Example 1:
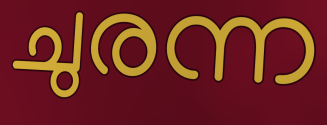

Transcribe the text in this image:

ചുരന്ന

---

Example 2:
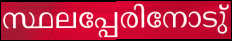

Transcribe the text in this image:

സ്ഥലപ്പേരിനോടു്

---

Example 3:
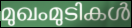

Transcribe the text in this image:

മുഖംമുടികൾ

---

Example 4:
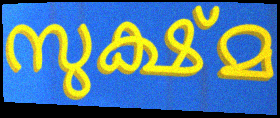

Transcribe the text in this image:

സുക്ഷ്മ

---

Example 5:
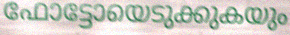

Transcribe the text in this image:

ഫോട്ടോയെടുക്കുകയും